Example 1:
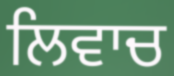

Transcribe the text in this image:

ਲਿਵਾਚ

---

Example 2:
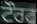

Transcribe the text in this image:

ਟੌਰਟ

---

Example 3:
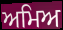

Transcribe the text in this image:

ਅਮਿਅ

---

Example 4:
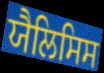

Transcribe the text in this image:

ਯੈਲਿਸਿਸ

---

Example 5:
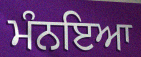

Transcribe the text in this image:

ਮੰਨਇਆ